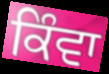
ਕਿੰਵਾ